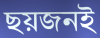
ছয়জনই